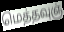
மெத்தவுஞ்